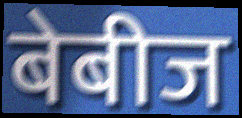
बेबीज